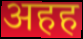
अहह